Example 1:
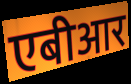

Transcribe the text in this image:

एबीआर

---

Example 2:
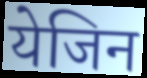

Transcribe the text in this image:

येजिन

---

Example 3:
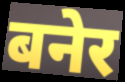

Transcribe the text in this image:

बनेर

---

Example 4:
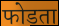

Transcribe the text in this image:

फोडता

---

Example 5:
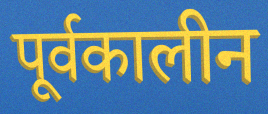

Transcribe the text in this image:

पूर्वकालीन